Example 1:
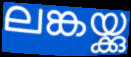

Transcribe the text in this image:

ലങ്കയ്ക്കു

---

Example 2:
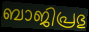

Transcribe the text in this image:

ബാജിപ്രഭു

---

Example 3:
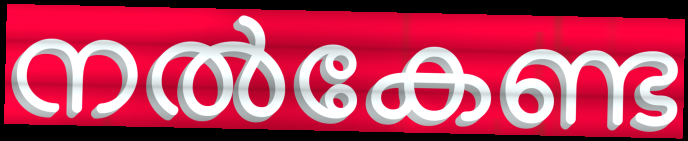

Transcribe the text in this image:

നൽകേണ്ട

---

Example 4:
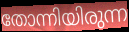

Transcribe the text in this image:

തോന്നിയിരുന്ന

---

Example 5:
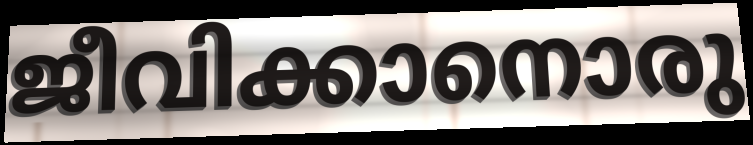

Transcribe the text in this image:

ജീവിക്കാനൊരു